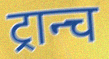
ट्रान्च